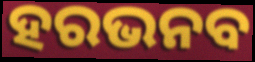
ହରଭନବ